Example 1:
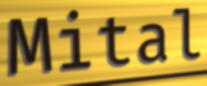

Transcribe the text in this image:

Mital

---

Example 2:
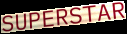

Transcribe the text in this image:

SUPERSTAR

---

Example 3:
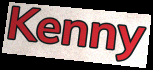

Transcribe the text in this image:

Kenny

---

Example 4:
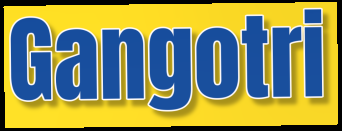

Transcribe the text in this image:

Gangotri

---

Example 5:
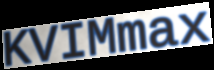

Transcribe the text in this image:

KVIMmax